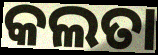
କଲତା